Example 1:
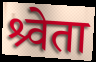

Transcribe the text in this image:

श्र्वेता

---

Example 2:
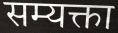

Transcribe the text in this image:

सम्यक्ता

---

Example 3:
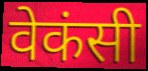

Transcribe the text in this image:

वेकंसी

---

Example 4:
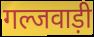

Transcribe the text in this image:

गल्जवाड़ी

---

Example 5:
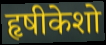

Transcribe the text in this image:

हृषीकेशो